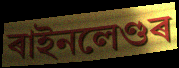
ৰাইনলেণ্ডৰ